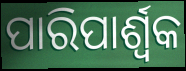
ପାରିପାର୍ଶ୍ବକ